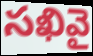
సఖివై